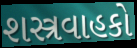
શસ્ત્રવાહકો